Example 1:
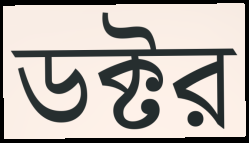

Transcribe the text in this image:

ডক্টর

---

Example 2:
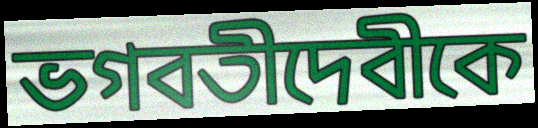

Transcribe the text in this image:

ভগবতীদেবীকে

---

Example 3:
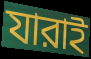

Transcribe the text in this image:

যারাই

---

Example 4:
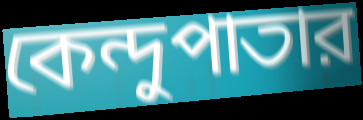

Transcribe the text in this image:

কেন্দুপাতার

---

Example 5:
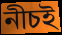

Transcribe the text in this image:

নীচই